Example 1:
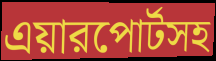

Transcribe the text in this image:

এয়ারপোর্টসহ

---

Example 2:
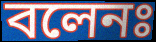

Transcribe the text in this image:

বলেনঃ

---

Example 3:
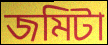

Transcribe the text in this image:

জমিটা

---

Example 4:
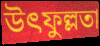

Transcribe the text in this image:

উৎফুল্লতা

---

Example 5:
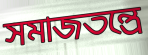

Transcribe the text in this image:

সমাজতন্ত্রে